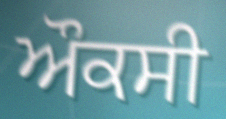
ਔਕਸੀ